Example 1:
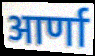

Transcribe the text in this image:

आर्णा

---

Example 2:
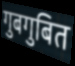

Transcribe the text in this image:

गुबगुबित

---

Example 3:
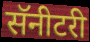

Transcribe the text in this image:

सॅनीटरी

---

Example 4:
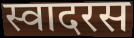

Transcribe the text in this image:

स्वादरस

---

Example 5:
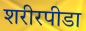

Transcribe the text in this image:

शरीरपीडा